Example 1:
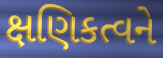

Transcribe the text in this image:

ક્ષણિકત્વને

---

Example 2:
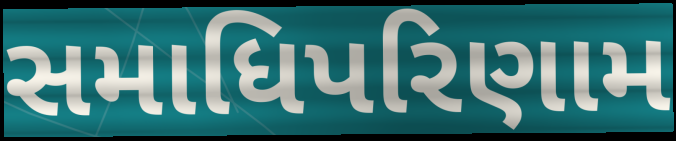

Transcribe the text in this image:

સમાધિપરિણામ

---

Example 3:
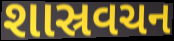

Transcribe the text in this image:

શાસ્રવચન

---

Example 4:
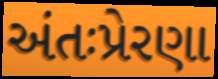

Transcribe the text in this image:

અંતઃપ્રેરણા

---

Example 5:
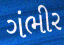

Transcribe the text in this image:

ગંભીર